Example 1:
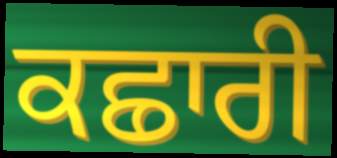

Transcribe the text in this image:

ਕਛਾਰੀ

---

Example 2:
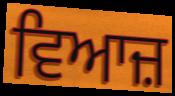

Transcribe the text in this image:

ਵਿਆਜ਼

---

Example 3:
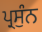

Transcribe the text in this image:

ਪ੍ਰਸੁੰਨ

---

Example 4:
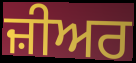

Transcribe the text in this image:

ਜ਼ੀਅਰ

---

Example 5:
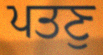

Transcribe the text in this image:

ਪਤਣੁ